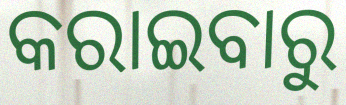
କରାଇବାରୁ